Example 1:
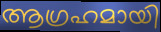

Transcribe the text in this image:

ആഗ്രഹമായി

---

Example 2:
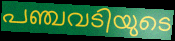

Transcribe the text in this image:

പഞ്ചവടിയുടെ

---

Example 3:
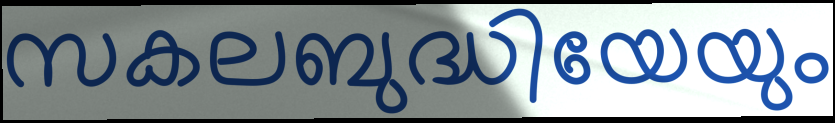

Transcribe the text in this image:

സകലബുദ്ധിയേയും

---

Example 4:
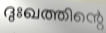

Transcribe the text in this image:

ദുഃഖത്തിന്റെ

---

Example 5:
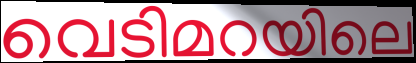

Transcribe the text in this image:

വെടിമറയിലെ